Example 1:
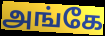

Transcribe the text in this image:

அங்கே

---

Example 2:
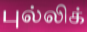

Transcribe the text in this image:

புல்லிக்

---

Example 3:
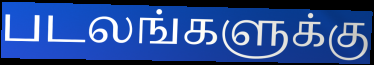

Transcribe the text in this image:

படலங்களுக்கு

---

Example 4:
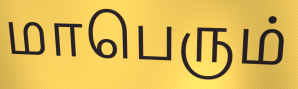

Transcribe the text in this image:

மாபெரும்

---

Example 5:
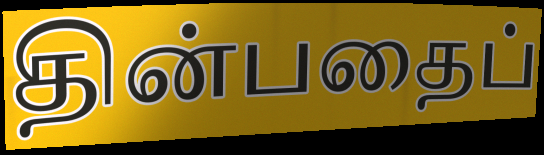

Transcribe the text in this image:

தின்பதைப்